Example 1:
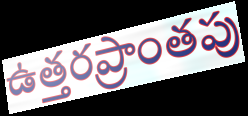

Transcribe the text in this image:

ఉత్తరప్రాంతపు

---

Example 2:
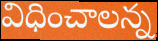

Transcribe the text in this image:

విధించాలన్న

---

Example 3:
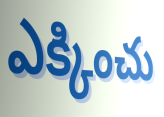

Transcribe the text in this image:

ఎక్కించు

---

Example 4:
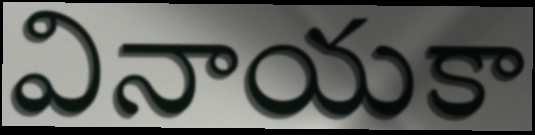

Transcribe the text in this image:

వినాయకా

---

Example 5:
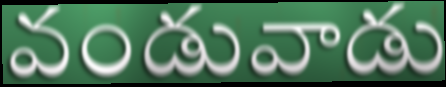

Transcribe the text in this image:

వండువాడు